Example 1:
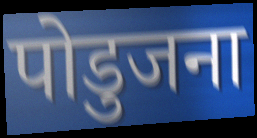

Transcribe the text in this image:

पोडुजना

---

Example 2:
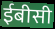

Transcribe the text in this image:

ईबीसी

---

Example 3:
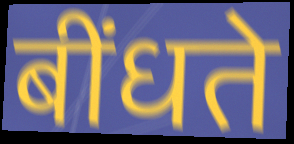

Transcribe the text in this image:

बींधते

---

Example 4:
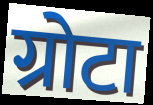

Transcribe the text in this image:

ग्रोटा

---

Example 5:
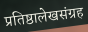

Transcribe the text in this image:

प्रतिष्ठालेखसंग्रह